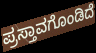
ಪ್ರಸ್ತಾವಗೊಂಡಿದೆ